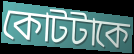
কোটটাকে